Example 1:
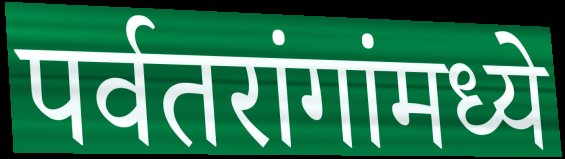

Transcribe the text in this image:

पर्वतरांगांमध्ये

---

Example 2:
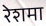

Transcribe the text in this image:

रेशमा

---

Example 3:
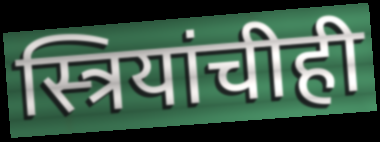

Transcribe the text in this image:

स्त्रियांचीही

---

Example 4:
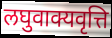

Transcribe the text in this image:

लघुवाक्यवृत्ति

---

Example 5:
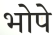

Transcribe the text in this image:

भोपे